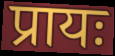
प्रायः